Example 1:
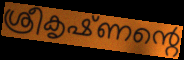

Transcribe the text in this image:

ശ്രീകൃഷ്‌ണന്റെ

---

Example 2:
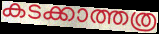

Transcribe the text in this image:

കടക്കാത്തത്ര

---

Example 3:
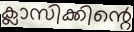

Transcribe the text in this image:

ക്ലാസിക്കിന്റെ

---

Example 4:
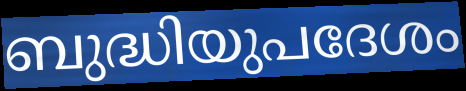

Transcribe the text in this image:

ബുദ്ധിയുപദേശം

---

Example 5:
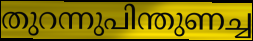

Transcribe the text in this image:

തുറന്നുപിന്തുണച്ച